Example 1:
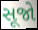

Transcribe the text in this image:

સૂજો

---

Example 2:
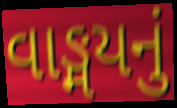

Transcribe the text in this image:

વાઙ્મયનું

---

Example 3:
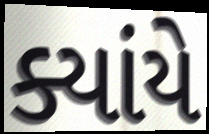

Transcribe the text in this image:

ક્યાંયે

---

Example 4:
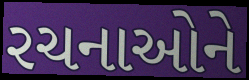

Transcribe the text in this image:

રચનાઓને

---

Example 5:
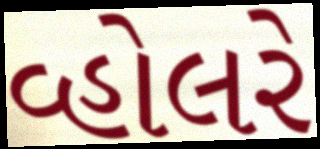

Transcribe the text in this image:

વ્હોલરે